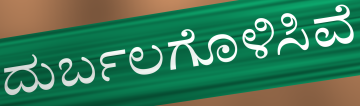
ದುರ್ಬಲಗೊಳಿಸಿವೆ